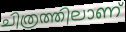
ചിത്രത്തിലാണ്